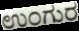
ಉಂಗುರ